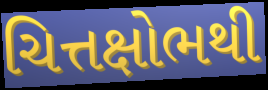
ચિત્તક્ષોભથી